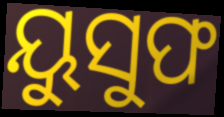
ୟୁସୁଫ